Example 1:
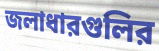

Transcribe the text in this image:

জলাধারগুলির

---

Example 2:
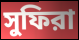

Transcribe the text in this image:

সুফিরা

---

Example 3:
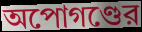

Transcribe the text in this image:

অপোগণ্ডের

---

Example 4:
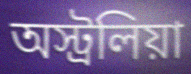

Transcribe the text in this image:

অস্ট্রলিয়া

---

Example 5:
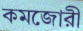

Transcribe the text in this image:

কমজোরী